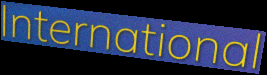
International